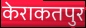
केराकतपुर